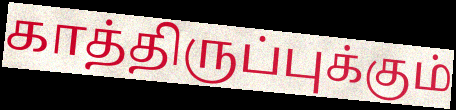
காத்திருப்புக்கும்